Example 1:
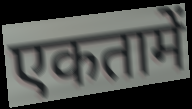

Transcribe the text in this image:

एकतामें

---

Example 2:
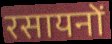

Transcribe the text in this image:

रसायनों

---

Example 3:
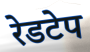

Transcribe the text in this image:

रेडटेप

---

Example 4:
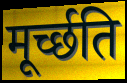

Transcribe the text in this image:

मूर्च्छति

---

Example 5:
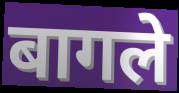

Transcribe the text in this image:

बागले